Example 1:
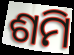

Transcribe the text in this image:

ଶମି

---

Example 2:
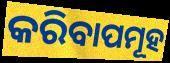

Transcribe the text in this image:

କରିବାପମୂହ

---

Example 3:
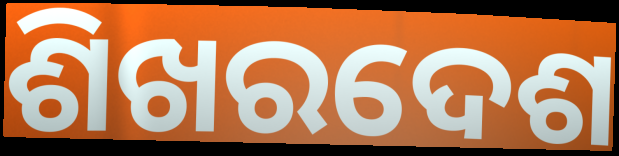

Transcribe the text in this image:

ଶିଖରଦେଶ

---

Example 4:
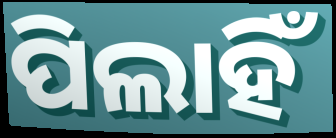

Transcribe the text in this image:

ପିଲାହିଁ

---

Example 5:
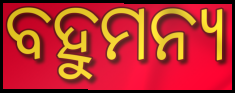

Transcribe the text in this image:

ବହୁମନ୍ୟ